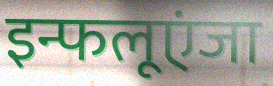
इन्फलूएंजा